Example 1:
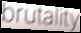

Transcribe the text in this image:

brutality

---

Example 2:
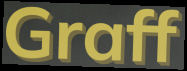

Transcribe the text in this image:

Graff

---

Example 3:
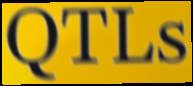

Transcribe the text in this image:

QTLs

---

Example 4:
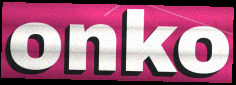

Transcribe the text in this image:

onko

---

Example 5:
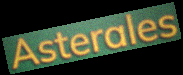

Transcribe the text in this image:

Asterales